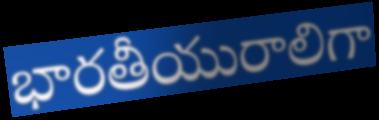
భారతీయురాలిగా